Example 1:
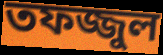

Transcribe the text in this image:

তফজ্জুল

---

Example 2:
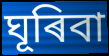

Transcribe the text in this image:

ঘূৰিবা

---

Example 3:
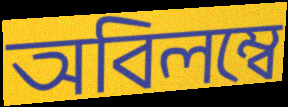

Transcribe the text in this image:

অবিলম্বে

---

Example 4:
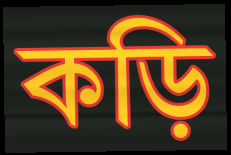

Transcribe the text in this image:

কড়ি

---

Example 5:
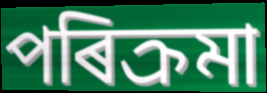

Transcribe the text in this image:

পৰিক্ৰমা